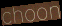
choon